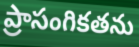
ప్రాసంగికతను